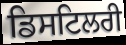
ਡਿਸਟਿਲਰੀ